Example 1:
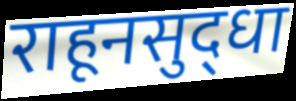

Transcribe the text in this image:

राहूनसुद्धा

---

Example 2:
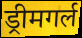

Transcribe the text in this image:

ड्रीमगर्ल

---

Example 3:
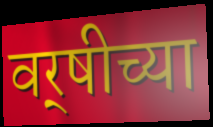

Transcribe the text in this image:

वर्षीच्या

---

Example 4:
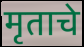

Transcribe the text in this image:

मृताचे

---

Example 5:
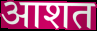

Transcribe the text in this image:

आशत